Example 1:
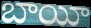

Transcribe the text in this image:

బాయీ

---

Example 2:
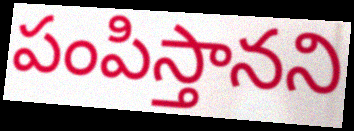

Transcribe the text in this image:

పంపిస్తానని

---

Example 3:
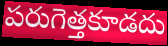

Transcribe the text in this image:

పరుగెత్తకూడదు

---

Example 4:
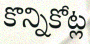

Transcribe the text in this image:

కొన్నికోట్ల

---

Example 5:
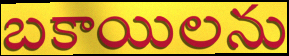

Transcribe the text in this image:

బకాయిలను